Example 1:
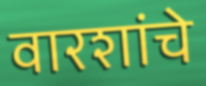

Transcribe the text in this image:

वारशांचे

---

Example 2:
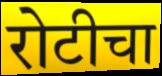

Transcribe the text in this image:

रोटीचा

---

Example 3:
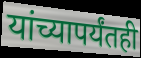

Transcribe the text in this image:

यांच्यापर्यंतही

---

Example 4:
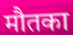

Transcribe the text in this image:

मौतका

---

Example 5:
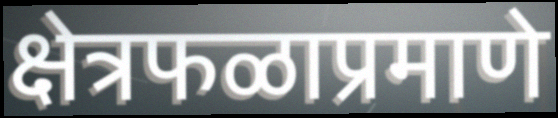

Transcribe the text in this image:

क्षेत्रफळाप्रमाणे